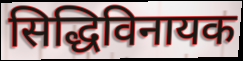
सिद्धिविनायक